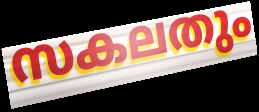
സകലതും